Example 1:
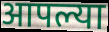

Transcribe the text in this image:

आपल्या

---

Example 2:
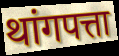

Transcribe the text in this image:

थांगपत्ता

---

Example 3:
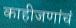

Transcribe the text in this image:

काहीजणांचं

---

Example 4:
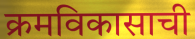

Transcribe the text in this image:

क्रमविकासाची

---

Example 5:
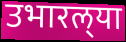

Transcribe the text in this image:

उभारल्या